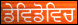
ਡੇਵਿਡੋਵਿਚ